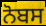
ਨੋਬਸ